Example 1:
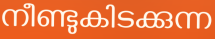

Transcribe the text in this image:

നീണ്ടുകിടക്കുന്ന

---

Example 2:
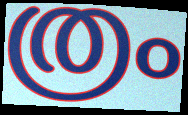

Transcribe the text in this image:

ത്രം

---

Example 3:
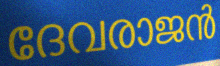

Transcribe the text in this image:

ദേവരാജൻ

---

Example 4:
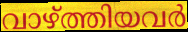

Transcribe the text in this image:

വാഴ്ത്തിയവർ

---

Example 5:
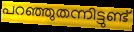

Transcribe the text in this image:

പറഞ്ഞുതന്നിട്ടുണ്ട്